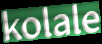
kolale